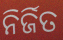
ନିର୍ଜିତ